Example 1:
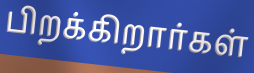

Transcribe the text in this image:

பிறக்கிறார்கள்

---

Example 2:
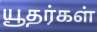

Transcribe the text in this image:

யூதர்கள்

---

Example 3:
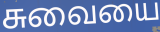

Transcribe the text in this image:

சுவையை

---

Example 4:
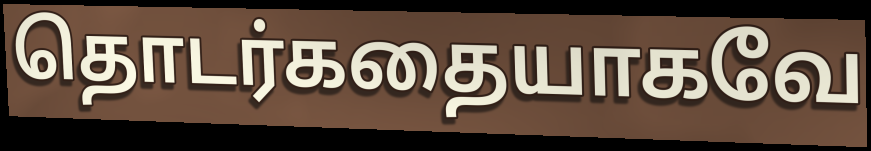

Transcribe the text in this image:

தொடர்கதையாகவே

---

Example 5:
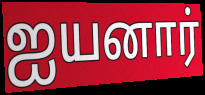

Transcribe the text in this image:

ஐயனார்